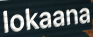
lokaana